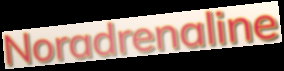
Noradrenaline